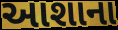
આશાના